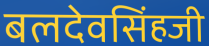
बलदेवसिंहजी